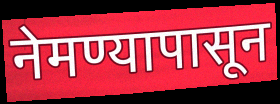
नेमण्यापासून